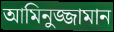
আমিনুজ্জামান